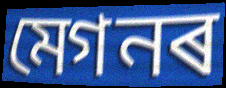
মেগনৰ